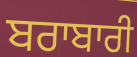
ਬਰਾਬਾਰੀ